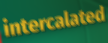
intercalated